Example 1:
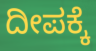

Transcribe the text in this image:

ದೀಪಕ್ಕೆ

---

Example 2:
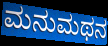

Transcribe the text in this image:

ಮನುಮಥನ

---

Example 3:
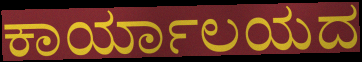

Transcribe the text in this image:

ಕಾರ್ಯಾಲಯದ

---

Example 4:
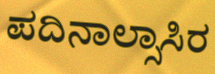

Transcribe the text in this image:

ಪದಿನಾಲ್ಸಾಸಿರ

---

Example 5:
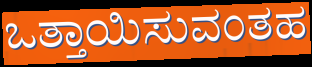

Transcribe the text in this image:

ಒತ್ತಾಯಿಸುವಂತಹ